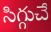
సిగ్గుచే